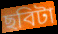
ছবিটা